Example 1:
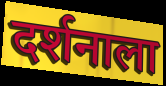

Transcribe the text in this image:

दर्शनाला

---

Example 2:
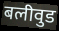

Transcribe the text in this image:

बलीवुड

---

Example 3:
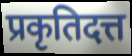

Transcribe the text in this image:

प्रकृतिदत्त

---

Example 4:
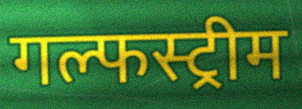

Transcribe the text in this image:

गल्फस्ट्रीम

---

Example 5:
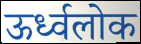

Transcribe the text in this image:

ऊर्ध्वलोक